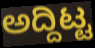
ಅದ್ದಿಟ್ಟ